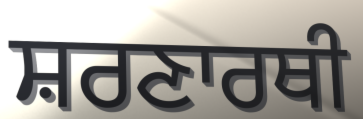
ਸ਼ਰਣਾਰਥੀ